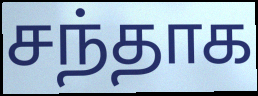
சந்தாக